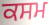
ਕਸਮ